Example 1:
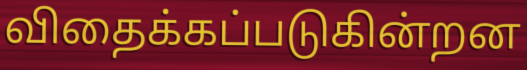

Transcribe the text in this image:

விதைக்கப்படுகின்றன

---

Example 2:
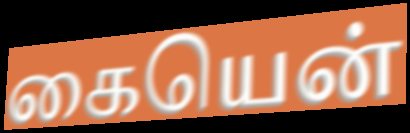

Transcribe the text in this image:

கையென்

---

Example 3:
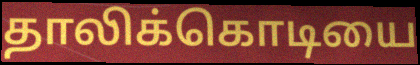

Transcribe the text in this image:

தாலிக்கொடியை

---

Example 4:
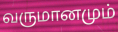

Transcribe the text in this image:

வருமானமும்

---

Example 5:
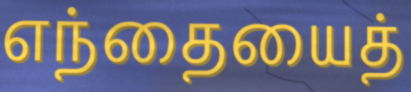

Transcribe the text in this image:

எந்தையைத்